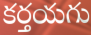
కర్తయగు